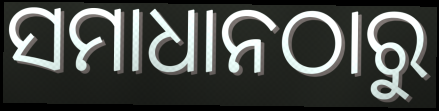
ସମାଧାନଠାରୁ